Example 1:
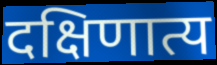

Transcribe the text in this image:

दक्षिणात्य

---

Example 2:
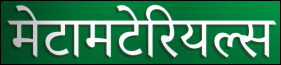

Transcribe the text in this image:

मेटामटेरियल्स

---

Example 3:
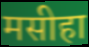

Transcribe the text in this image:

मसीहा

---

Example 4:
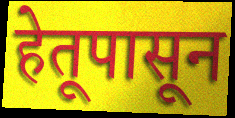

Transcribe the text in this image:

हेतूपासून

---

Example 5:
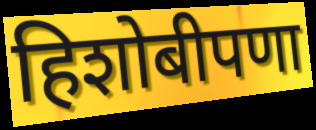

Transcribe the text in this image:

हिशोबीपणा